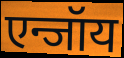
एन्जॉय